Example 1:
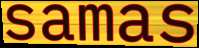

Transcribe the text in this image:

samas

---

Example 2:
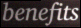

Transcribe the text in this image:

benefits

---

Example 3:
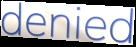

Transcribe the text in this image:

denied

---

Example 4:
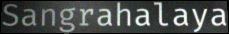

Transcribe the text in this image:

Sangrahalaya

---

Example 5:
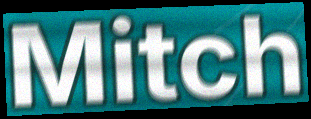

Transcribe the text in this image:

Mitch